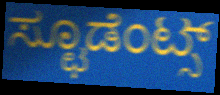
ಸ್ಟೂಡೆಂಟ್ಸ್